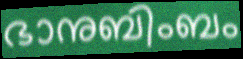
ഭാനുബിംബം